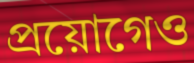
প্রয়োগেও